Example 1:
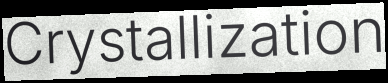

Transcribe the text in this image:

Crystallization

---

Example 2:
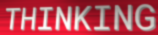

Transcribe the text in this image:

THINKING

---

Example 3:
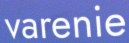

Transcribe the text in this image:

varenie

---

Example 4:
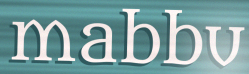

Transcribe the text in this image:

mabbu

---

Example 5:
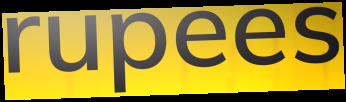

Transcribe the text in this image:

rupees